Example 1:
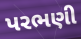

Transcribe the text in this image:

પરભણી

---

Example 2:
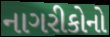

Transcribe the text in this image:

નાગરીકોનો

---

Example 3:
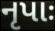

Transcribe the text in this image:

નૃપાઃ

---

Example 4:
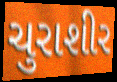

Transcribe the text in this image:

ચુરાશીર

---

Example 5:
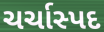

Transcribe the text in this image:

ચર્ચાસ્પદ